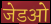
जेडओ